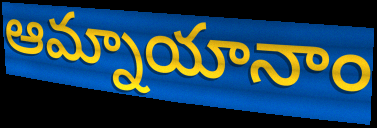
ఆమ్నాయానాం